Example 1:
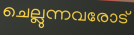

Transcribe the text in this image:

ചെല്ലുന്നവരോട്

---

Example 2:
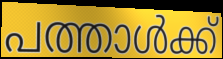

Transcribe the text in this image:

പത്താൾക്ക്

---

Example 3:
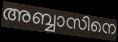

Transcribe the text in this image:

അബ്ബാസിനെ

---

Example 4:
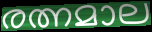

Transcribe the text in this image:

രത്നമാല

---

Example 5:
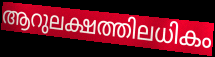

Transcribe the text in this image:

ആറുലക്ഷത്തിലധികം